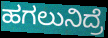
ಹಗಲುನಿದ್ರೆ